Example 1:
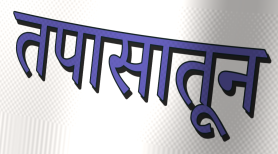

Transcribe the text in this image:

तपासातून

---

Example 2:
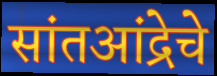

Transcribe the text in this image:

सांतआंद्रेचे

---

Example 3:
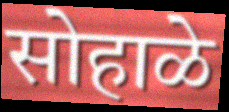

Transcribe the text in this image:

सोहाळे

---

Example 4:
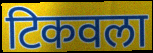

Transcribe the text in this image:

टिकवला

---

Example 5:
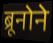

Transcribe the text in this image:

ब्रूनोने